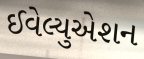
ઈવેલ્યુએશન